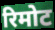
रिमोट